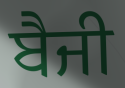
ਬੈਜੀ